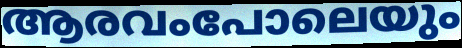
ആരവംപോലെയും